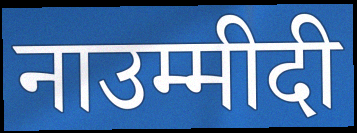
नाउम्मीदी